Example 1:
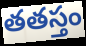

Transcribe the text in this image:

తతస్తం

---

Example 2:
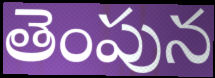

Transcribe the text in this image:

తెంపున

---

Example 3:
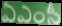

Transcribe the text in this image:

ఏఎంసీ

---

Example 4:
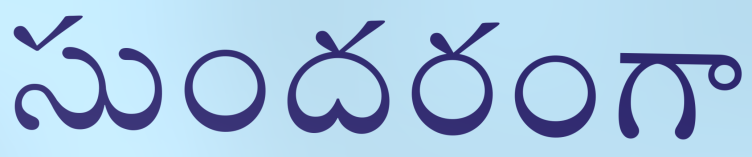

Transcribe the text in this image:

సుందరంగా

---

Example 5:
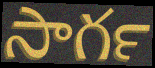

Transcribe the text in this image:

సాగర్‍